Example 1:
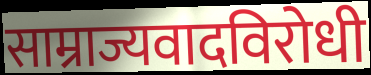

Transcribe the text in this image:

साम्राज्यवादविरोधी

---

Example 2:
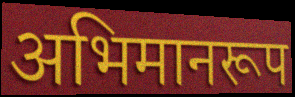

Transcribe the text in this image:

अभिमानरूप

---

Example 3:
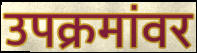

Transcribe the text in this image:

उपक्रमांवर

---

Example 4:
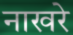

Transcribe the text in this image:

नाखरे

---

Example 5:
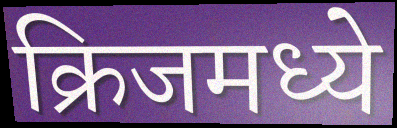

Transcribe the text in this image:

क्रिजमध्ये